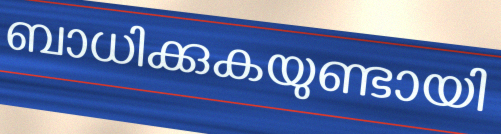
ബാധിക്കുകയുണ്ടായി